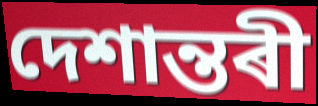
দেশান্তৰী